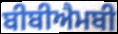
ਬੀਬੀਐਮਬੀ